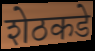
शेठकडे